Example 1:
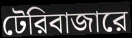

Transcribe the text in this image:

টেরিবাজারে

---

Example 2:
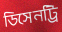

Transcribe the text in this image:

ডিসেনট্রি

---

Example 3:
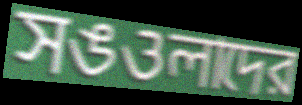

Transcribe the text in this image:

সঙওলাদের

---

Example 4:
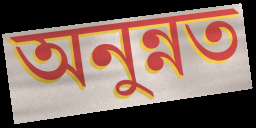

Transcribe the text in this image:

অনুন্নত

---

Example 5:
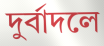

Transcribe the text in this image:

দুর্বাদলে